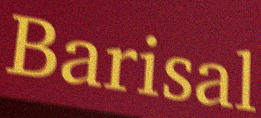
Barisal